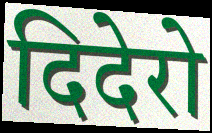
दिदेरो